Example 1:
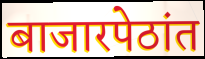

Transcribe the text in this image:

बाजारपेठांत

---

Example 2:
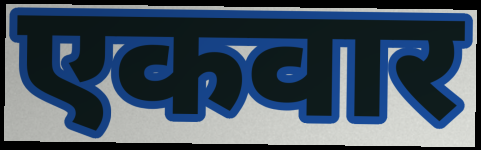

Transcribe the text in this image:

एकवार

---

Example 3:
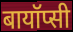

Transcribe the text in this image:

बायॉप्सी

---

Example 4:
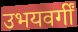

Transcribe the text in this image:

उभयवर्गीं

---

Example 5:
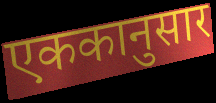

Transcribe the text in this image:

एककानुसार